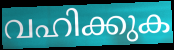
വഹിക്കുക